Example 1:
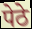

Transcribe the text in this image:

पेठे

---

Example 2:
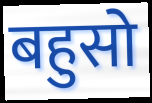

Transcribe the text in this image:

बहुसो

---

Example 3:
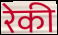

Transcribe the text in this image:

रेकी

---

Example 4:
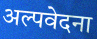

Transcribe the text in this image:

अल्पवेदना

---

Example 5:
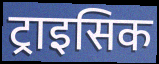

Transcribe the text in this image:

ट्राइसिक